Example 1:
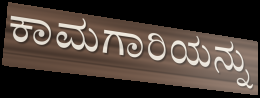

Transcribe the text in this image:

ಕಾಮಗಾರಿಯನ್ನು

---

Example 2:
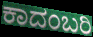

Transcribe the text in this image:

ಕಾದಂಬರಿ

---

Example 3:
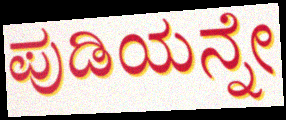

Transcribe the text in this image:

ಪುಡಿಯನ್ನೇ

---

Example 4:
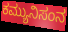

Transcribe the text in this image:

ಕಮ್ಯುನಿಸಂನ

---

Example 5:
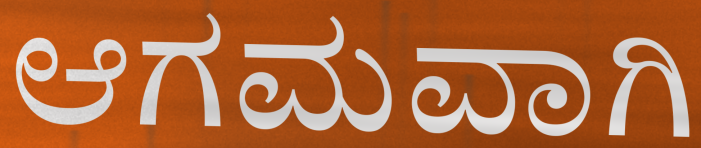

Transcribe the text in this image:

ಆಗಮವಾಗಿ